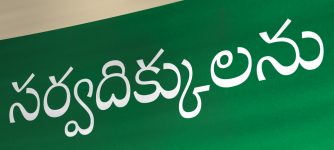
సర్వదిక్కులను